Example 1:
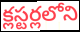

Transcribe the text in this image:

క్లస్టర్లలోని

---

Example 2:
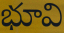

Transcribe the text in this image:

భూవి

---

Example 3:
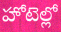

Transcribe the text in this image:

హోటెల్లో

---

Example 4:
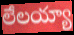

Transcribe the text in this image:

లేలయ్యా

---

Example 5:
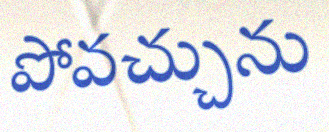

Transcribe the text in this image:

పోవచ్చును